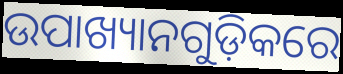
ଉପାଖ୍ୟାନଗୁଡ଼ିକରେ